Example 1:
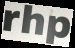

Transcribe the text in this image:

rhp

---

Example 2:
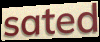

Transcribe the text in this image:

sated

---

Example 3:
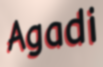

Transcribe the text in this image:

Agadi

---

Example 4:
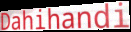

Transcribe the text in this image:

Dahihandi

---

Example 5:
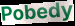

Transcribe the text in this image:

Pobedy